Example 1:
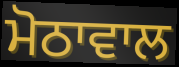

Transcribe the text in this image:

ਮੋਠਾਵਾਲ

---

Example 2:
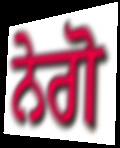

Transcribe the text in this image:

ਨੇਗੋ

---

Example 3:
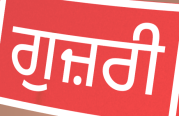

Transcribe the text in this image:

ਗੁਜ਼ਰੀ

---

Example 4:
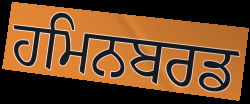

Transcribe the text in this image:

ਹਮਿਨਬਰਡ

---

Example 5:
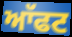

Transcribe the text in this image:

ਆੱਫਟ